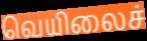
வெயிலைச்